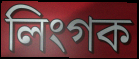
লিংগক